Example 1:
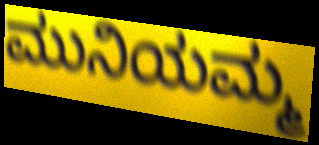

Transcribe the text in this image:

ಮುನಿಯಮ್ಮ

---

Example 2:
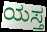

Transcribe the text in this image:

ಯಸ್ತ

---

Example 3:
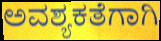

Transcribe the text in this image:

ಅವಶ್ಯಕತೆಗಾಗಿ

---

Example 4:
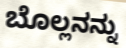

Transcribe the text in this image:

ಬೊಲ್ಲನನ್ನು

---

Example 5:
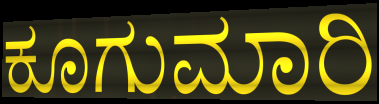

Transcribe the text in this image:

ಕೂಗುಮಾರಿ